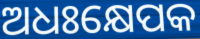
ଅଧଃକ୍ଷେପକ